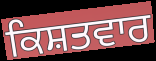
ਕਿਸ਼ਤਵਾਰ